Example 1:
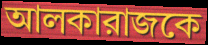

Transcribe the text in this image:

আলকারাজকে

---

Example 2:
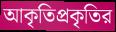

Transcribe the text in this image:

আকৃতিপ্রকৃতির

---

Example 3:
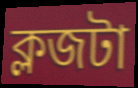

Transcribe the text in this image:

ক্লজটা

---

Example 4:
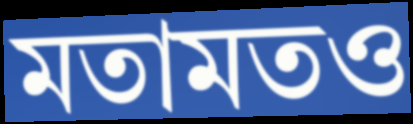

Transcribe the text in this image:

মতামতও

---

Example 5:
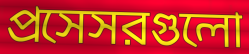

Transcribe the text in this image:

প্রসেসরগুলো